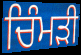
ਚਿੰਮੜੀ